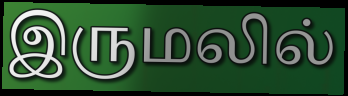
இருமலில்